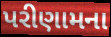
પરીણામના